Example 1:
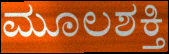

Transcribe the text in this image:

ಮೂಲಶಕ್ತಿ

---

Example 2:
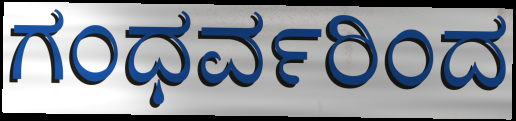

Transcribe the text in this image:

ಗಂಧರ್ವರಿಂದ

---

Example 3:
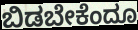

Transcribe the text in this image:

ಬಿಡಬೇಕೆಂದೂ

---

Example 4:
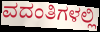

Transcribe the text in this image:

ವದಂತಿಗಳಲ್ಲಿ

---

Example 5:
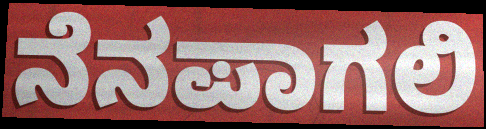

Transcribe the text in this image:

ನೆನಪಾಗಲಿ